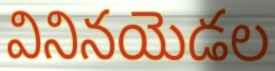
వినినయెడల